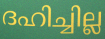
ദഹിച്ചില്ല